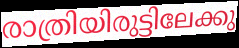
രാത്രിയിരുട്ടിലേക്കു